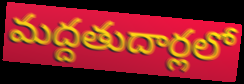
మద్దతుదార్లలో